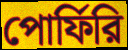
পোর্ফিরি